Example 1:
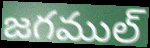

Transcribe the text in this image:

జగముల్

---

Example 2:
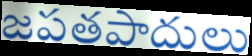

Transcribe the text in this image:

జపతపాదులు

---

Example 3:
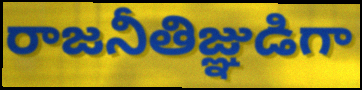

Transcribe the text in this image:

రాజనీతిజ్ఞుడిగా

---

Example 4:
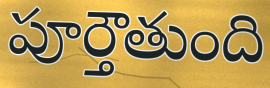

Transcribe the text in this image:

పూర్తౌతుంది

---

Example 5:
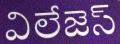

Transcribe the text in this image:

విలేజెస్